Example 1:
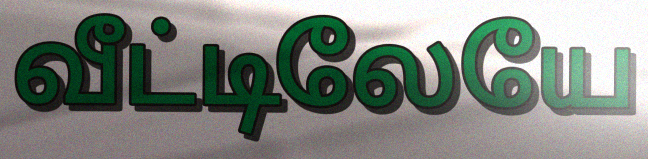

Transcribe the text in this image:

வீட்டிலேயே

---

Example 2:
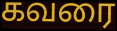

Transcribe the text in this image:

கவரை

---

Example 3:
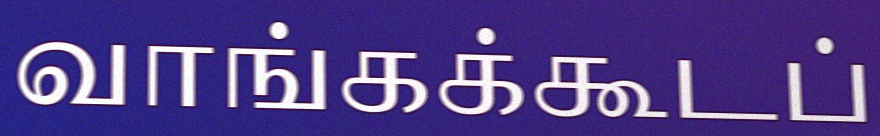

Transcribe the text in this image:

வாங்கக்கூடப்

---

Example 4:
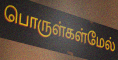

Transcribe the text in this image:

பொருள்கள்மேல்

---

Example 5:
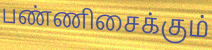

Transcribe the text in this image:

பண்ணிசைக்கும்